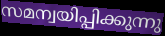
സമന്വയിപ്പിക്കുന്നു